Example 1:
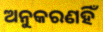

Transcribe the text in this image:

ଅନୁକରଣହିଁ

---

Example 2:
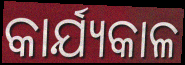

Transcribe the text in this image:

କାର୍ଯ୍ୟକାଳ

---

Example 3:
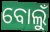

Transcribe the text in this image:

ବୋଲୁଁ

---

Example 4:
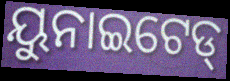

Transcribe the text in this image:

ୟୁନାଇଟେଡ୍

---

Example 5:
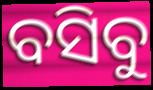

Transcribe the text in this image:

ବସିବୁ